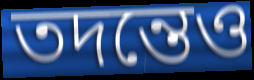
তদন্তেও